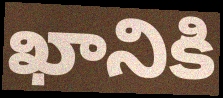
ఖానికి